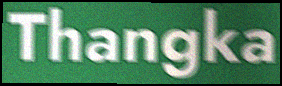
Thangka